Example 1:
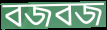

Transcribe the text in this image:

বজবজ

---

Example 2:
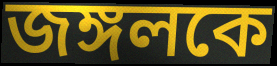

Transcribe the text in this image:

জঙ্গলকে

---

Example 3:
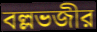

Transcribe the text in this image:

বল্লভজীর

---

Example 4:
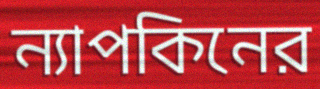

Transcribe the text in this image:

ন্যাপকিনের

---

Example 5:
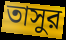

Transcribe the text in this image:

তাসুর